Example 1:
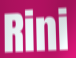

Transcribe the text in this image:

Rini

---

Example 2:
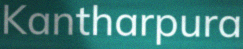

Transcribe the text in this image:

Kantharpura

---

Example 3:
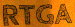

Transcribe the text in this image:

RTGA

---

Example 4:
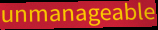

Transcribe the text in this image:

unmanageable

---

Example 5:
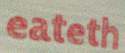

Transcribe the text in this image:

eateth